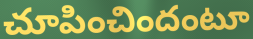
చూపించిందంటూ